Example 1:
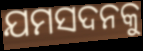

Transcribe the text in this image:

ଯମସଦନକୁ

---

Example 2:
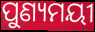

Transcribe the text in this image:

ପୁଣ୍ୟମୟୀ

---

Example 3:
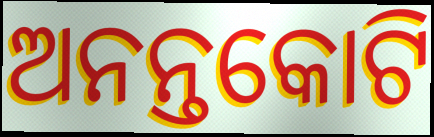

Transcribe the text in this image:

ଅନନ୍ତକୋଟି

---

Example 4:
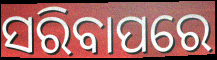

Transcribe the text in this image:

ସରିବାପରେ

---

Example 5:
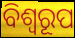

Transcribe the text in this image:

ବିଶ୍ୱରୂପ